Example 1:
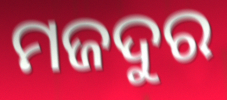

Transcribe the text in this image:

ମଜଦୁର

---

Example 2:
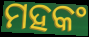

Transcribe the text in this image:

ମହକଂ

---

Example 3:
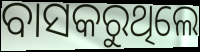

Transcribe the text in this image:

ବାସକରୁଥିଲେ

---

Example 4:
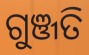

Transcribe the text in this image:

ଗୁଞ୍ଜତି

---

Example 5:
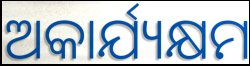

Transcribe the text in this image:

ଅକାର୍ଯ୍ୟକ୍ଷମ